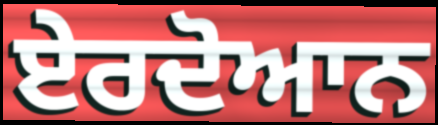
ਏਰਦੋਆਨ